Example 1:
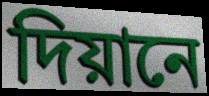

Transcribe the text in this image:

দিয়ানে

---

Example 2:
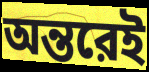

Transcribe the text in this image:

অন্তরেই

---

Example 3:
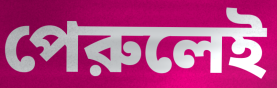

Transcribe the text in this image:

পেরুলেই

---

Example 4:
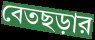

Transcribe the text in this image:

বেতছড়ার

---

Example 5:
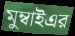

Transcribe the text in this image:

মুম্বাইএর